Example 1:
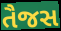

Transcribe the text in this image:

તૈજસ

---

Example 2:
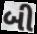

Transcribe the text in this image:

બી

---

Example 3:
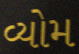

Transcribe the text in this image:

વ્યોમ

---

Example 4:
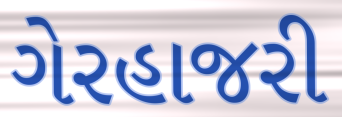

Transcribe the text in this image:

ગેરહાજરી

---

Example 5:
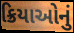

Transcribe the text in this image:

ક્રિયાઓનું